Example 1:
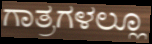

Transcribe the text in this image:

ಗಾತ್ರಗಳಲ್ಲೂ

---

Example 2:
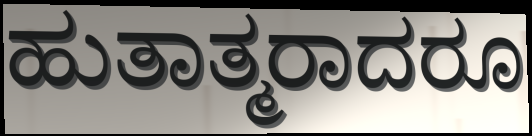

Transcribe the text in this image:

ಹುತಾತ್ಮರಾದರೂ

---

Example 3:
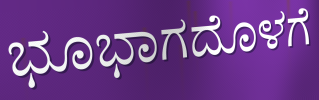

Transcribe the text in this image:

ಭೂಭಾಗದೊಳಗೆ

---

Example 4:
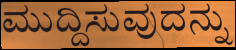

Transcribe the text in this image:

ಮುದ್ದಿಸುವುದನ್ನು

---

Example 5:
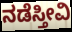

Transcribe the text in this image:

ನಡೆಸ್ತೀವಿ